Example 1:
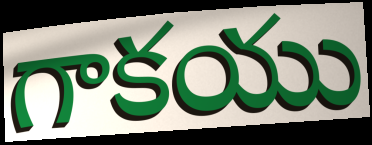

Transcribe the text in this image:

గాకయు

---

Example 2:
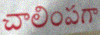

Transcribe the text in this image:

చాలింపగా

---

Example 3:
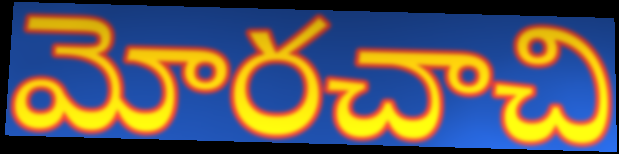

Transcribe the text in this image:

మోరచాచి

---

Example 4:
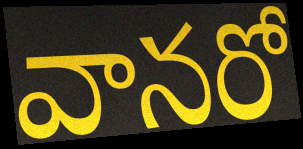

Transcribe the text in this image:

వానరో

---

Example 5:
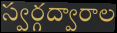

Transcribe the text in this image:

స్వర్గద్వారాల